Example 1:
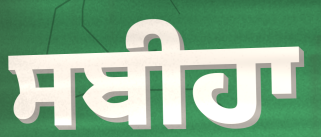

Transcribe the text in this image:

ਸਬੀਹਾ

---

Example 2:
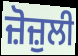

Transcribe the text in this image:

ਜ਼ੋਜ਼ੁਲੀ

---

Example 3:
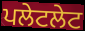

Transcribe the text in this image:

ਪਲੇਟਲੇਟ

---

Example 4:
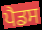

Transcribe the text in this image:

ਪੈਡਸ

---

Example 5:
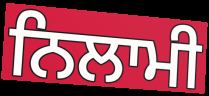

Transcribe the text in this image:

ਨਿਲਾਮੀ